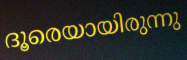
ദൂരെയായിരുന്നു